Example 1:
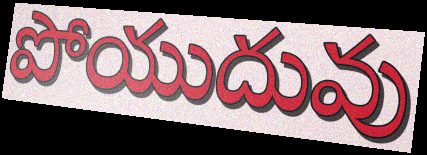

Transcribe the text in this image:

పోయుదువు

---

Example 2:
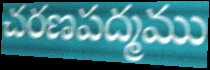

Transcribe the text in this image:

చరణపద్మము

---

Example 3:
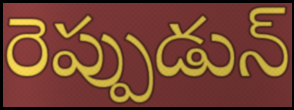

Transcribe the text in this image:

రెప్పుడున్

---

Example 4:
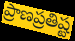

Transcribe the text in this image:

ప్రాణప్రతిష్ట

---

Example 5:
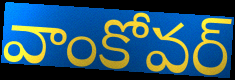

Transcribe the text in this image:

వాంకోవర్